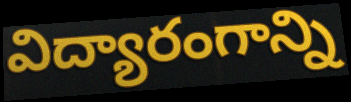
విద్యారంగాన్ని